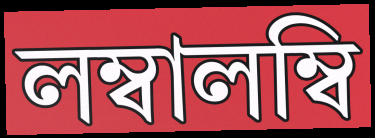
লম্বালম্বি